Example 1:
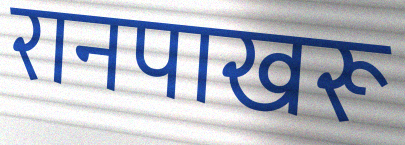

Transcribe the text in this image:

रानपाखरू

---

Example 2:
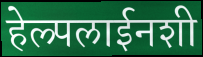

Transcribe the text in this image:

हेल्पलाईनशी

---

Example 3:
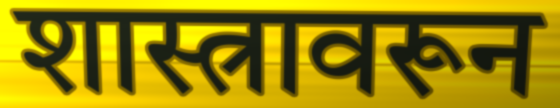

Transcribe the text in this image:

शास्त्रावरून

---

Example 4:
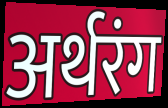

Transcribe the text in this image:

अर्थरंग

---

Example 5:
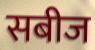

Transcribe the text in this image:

सबीज